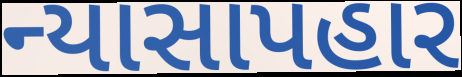
ન્યાસાપહાર